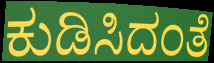
ಕುಡಿಸಿದಂತೆ